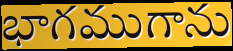
భాగముగాను